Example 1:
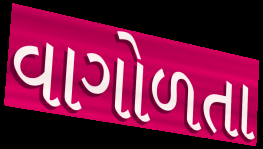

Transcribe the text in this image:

વાગોળતા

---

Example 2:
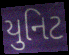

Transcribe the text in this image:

યુનિટ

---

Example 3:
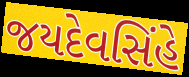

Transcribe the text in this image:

જયદેવસિંહે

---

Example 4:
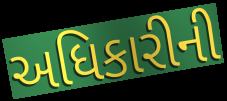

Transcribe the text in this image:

અધિકારીની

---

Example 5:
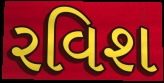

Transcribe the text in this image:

રવિશ